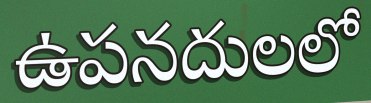
ఉపనదులలో